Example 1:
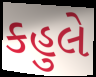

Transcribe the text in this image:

કહુલે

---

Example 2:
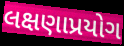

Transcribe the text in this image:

લક્ષણાપ્રયોગ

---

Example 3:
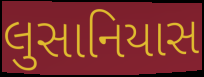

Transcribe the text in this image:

લુસાનિયાસ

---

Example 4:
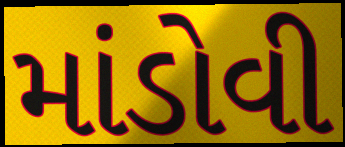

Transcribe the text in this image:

માંડોવી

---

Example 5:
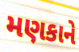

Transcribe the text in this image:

મણકાને